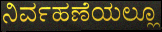
ನಿರ್ವಹಣೆಯಲ್ಲೂ